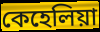
কেহেলিয়া